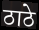
ठाठे